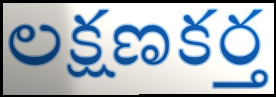
లక్షణకర్త